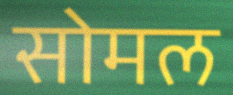
सोमल